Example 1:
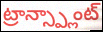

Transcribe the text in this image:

ట్రాన్స్ప్లాంట్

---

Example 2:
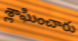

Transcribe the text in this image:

శ్లాఘించారు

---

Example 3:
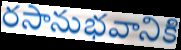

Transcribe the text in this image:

రసానుభవానికి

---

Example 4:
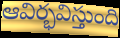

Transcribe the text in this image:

ఆవిర్భవిస్తుంది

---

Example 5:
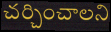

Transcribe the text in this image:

చర్చించాలని